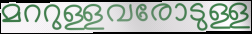
മററുള്ളവരോടുള്ള